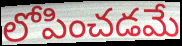
లోపించడమే